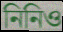
নিনিও